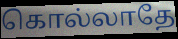
கொல்லாதே